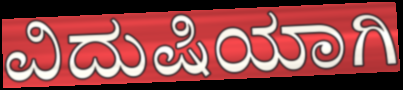
ವಿದುಷಿಯಾಗಿ